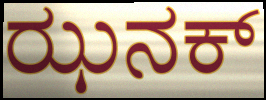
ಝನಕ್